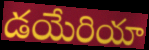
డయేరియా